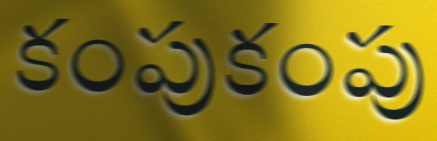
కంపుకంపు